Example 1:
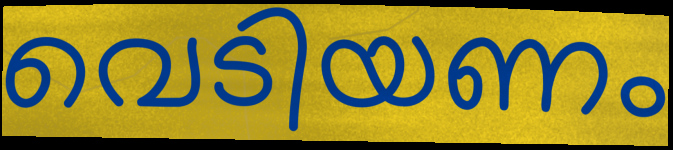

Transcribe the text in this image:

വെടിയണം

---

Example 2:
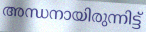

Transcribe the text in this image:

അന്ധനായിരുന്നിട്ട്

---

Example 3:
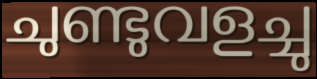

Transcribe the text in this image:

ചുണ്ടുവളച്ചു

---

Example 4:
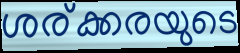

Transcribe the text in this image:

ശര്ക്കരയുടെ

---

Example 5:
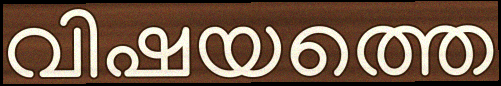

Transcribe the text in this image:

വിഷയത്തെ